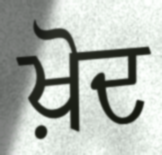
ਖ਼ੋਦ